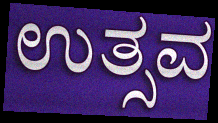
ಉತ್ಸವ